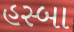
હસ્બા